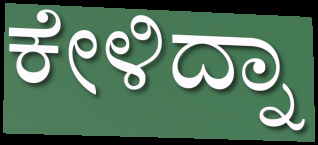
ಕೇಳಿದ್ನಾ